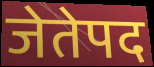
जेतेपद